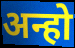
अन्हो